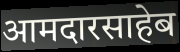
आमदारसाहेब